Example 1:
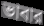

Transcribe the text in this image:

ভাবার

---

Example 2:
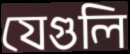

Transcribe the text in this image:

যেগুলি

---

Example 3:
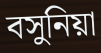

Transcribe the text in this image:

বসুনিয়া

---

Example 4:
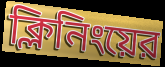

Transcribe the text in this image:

ক্লিনিংয়ের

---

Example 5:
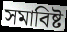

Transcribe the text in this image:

সমাবিষ্ট